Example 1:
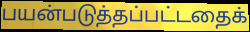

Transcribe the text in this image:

பயன்படுத்தப்பட்டதைக்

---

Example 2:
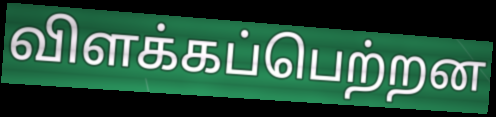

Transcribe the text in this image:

விளக்கப்பெற்றன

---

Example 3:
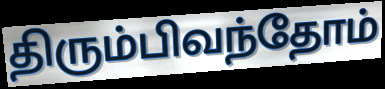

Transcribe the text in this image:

திரும்பிவந்தோம்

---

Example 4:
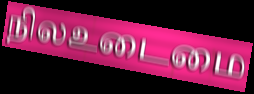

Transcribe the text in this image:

நிலஉடைமை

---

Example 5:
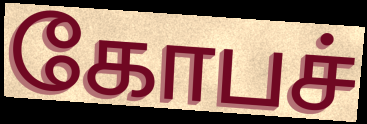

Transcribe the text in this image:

கோபச்